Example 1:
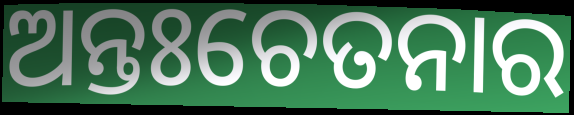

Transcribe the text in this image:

ଅନ୍ତଃଚେତନାର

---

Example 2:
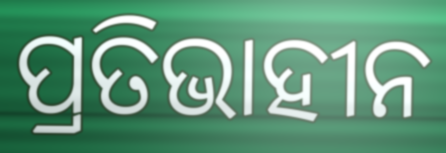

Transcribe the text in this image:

ପ୍ରତିଭାହୀନ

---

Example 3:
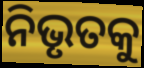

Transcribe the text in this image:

ନିଭୃତକୁ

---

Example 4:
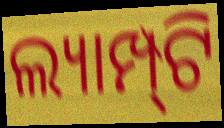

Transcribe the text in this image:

ଲ୍ୟାମ୍ପ୍‍ଟି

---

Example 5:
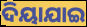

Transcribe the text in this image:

ଦିୟାଯାଇ